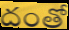
దంతో